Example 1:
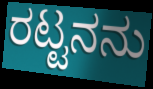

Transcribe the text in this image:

ರಟ್ಟನನು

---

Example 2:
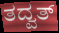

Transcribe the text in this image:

ತದ್ವತ್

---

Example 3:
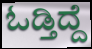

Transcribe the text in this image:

ಓಡ್ತಿದ್ದೆ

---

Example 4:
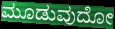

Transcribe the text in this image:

ಮೂಡುವುದೋ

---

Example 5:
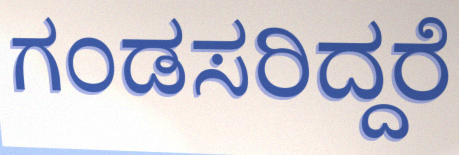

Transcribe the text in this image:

ಗಂಡಸರಿದ್ದರೆ